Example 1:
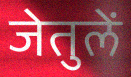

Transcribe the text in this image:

जेतुलें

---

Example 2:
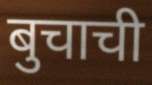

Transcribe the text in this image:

बुचाची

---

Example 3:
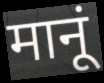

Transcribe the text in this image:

मानूं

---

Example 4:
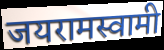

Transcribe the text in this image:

जयरामस्वामी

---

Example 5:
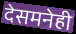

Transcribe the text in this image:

देसमनेही